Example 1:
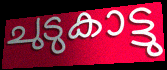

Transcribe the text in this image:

ചുടുകാട്ടു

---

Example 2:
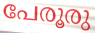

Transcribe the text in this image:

പേരൂരു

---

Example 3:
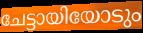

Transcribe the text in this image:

ചേട്ടായിയോടും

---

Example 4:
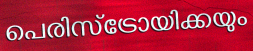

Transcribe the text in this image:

പെരിസ്ട്രോയിക്കയും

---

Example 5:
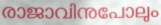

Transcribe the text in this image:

രാജാവിനുപോലും